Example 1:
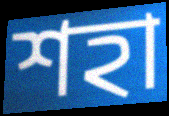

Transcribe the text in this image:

শহা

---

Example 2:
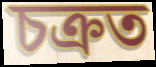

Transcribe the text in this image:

চক্ৰত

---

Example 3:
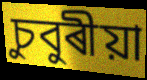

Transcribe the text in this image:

চুবুৰীয়া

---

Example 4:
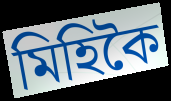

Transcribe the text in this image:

মিহিকৈ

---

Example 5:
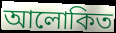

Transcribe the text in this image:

আলোকিত